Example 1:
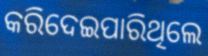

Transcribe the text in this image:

କରିଦେଇପାରିଥିଲେ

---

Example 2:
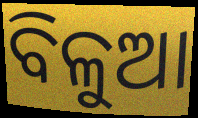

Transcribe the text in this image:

ବିଳୁଆ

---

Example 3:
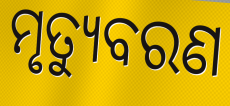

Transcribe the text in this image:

ମୃତ୍ୟୁବରଣ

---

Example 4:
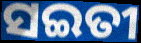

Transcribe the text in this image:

ସଇତୀ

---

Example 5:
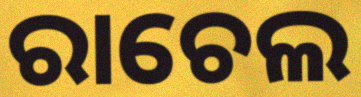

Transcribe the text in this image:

ରାଚେଲ